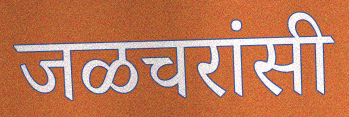
जळचरांसी